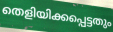
തെളിയിക്കപ്പെട്ടതും